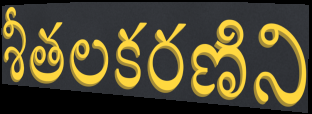
శీతలకరణిని